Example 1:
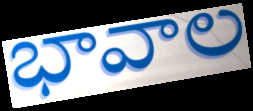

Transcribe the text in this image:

భావాల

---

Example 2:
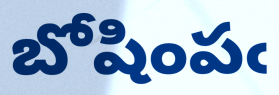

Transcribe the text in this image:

బోషింపఁ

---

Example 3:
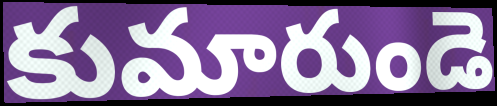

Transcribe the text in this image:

కుమారుండె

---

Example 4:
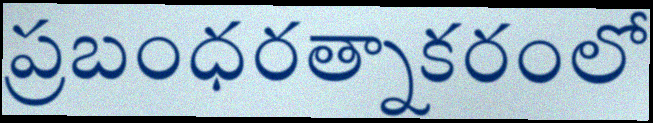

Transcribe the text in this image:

ప్రబంధరత్నాకరంలో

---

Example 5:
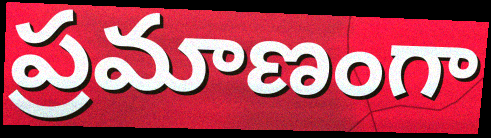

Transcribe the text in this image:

ప్రమాణంగా